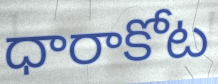
ధారాకోట